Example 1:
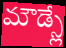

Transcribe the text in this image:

మౌడ్స్లే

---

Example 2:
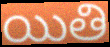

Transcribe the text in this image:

యితి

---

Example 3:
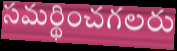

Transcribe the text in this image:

సమర్థించగలరు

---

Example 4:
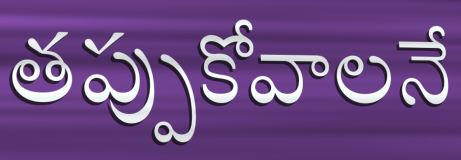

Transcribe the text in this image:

తప్పుకోవాలనే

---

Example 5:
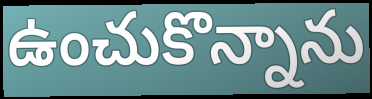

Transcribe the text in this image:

ఉంచుకొన్నాను